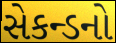
સેકન્ડનો